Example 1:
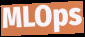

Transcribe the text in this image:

MLOps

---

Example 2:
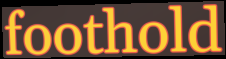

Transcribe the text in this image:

foothold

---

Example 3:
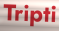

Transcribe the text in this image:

Tripti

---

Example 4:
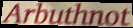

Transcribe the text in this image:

Arbuthnot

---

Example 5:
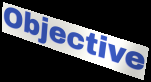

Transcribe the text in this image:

Objective